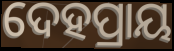
ଦେହପ୍ରାୟ